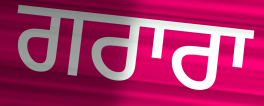
ਗਰਾਰਾ